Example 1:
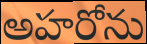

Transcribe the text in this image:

అహరోను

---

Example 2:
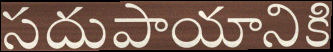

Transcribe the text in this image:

సదుపాయానికి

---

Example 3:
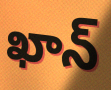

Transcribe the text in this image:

ఖాన్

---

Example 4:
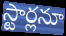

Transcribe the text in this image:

స్టార్లనూ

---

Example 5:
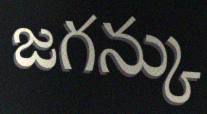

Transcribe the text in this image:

జగన్కు